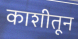
काशीतून